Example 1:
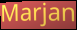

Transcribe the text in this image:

Marjan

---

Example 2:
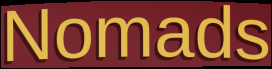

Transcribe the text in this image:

Nomads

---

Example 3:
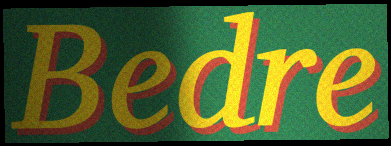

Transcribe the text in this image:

Bedre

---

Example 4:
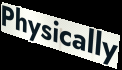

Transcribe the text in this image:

Physically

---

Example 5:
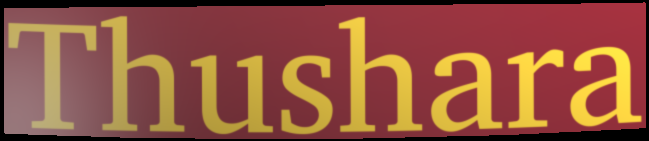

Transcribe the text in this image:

Thushara